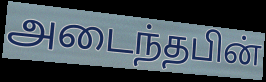
அடைந்தபின்